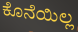
ಕೊನೆಯಿಲ್ಲ